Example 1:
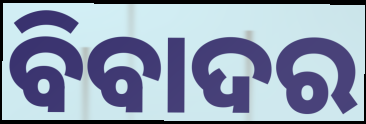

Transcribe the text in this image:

ବିବାଦର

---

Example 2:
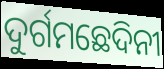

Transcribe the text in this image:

ଦୁର୍ଗମଛେଦିନୀ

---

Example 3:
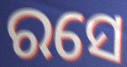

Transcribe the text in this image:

ରସେ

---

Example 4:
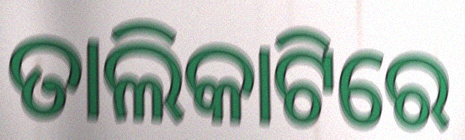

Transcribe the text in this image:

ତାଲିକାଟିରେ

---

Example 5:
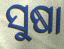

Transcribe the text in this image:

ସୁଷା